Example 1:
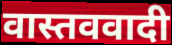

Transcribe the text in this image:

वास्तववादी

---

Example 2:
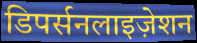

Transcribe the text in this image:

डिपर्सनलाइज़ेशन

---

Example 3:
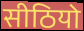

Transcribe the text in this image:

सीठियो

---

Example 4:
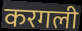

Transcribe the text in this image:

करगली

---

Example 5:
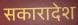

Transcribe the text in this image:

सकारादेश